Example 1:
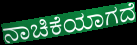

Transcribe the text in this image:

ನಾಚಿಕೆಯಾಗದೆ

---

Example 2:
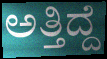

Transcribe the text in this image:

ಅತ್ತಿದ್ದೆ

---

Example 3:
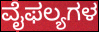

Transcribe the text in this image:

ವೈಫಲ್ಯಗಳ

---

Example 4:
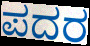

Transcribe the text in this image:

ಪದರ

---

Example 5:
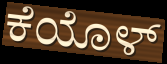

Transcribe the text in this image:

ಕೆಯೊಳ್